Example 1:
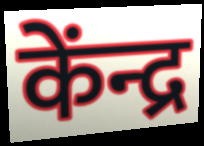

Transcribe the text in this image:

केंन्द्र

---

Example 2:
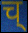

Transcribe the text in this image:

च्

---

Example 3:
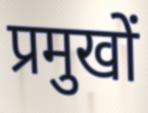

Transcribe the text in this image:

प्रमुखों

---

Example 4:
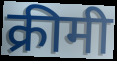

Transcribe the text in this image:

क्रीमी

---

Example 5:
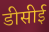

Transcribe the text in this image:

डीसीई